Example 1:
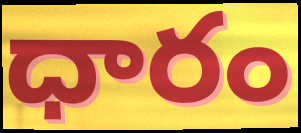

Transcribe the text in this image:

ధారం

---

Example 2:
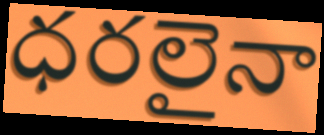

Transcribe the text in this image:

ధరలైనా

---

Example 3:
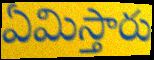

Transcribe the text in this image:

ఏమిస్తారు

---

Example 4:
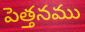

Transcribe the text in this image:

పెత్తనము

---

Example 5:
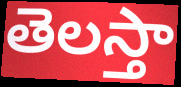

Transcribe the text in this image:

తెలస్తా